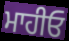
ਮਾਹੀਓ